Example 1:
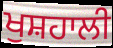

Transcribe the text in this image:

ਖੁਸ਼ਹਾਲੀ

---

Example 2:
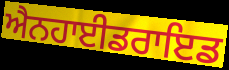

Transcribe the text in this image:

ਐਨਹਾਈਡਰਾਇਡ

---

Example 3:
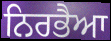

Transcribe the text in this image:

ਨਿਰਭੈਆ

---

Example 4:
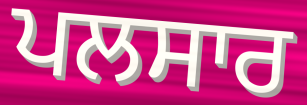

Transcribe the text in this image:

ਪਲਸਾਰ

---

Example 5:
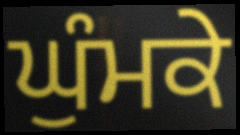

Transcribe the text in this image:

ਘੁੰਮਕੇ